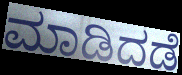
ಮಾಡಿದಡೆ